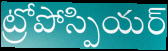
ట్రోపోస్పియర్